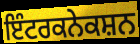
ਇੰਟਰਕਨੇਕਸ਼ਨ